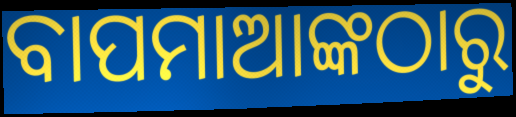
ବାପମାଆଙ୍କଠାରୁ